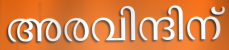
അരവിന്ദിന്